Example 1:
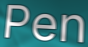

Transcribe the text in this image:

Pen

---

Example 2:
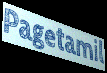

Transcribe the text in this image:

Pagetamil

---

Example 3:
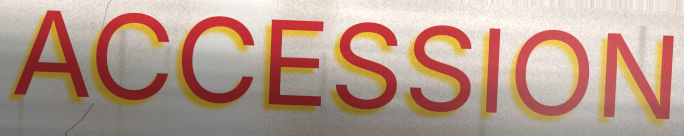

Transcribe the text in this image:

ACCESSION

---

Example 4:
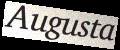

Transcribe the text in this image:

Augusta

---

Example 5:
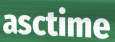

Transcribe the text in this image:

asctime